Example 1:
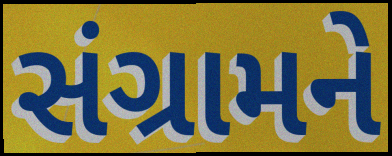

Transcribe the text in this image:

સંગ્રામને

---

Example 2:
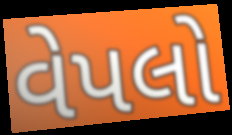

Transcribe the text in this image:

વેપલો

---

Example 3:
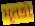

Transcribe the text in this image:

મૃતકો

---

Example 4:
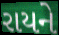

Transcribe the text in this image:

રાયને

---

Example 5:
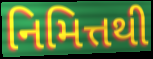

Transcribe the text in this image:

નિમિત્તથી